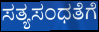
ಸತ್ಯಸಂಧತೆಗೆ